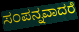
ಸಂಪನ್ನವಾದರೆ